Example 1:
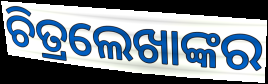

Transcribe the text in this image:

ଚିତ୍ରଲେଖାଙ୍କର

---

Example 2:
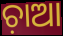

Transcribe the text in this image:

ଚ଼ାଆ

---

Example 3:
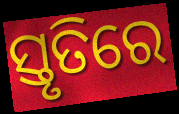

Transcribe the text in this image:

ସ୍ତୃତିରେ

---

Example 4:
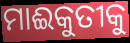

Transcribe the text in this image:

ମାଈକୁତୀକୁ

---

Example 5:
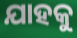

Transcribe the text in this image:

ଯାହକୁ